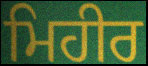
ਮਿਹੀਰ